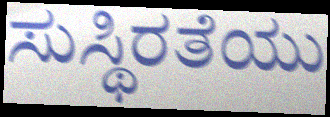
ಸುಸ್ಥಿರತೆಯು